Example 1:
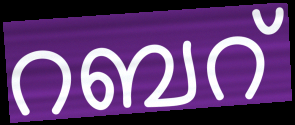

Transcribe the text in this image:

റബറ്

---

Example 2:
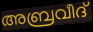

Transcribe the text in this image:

അബ്രവീദ്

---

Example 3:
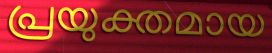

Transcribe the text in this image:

പ്രയുക്തമായ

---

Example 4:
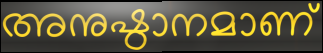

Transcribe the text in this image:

അനുഷ്ഠാനമാണ്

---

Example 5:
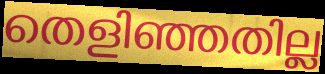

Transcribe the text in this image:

തെളിഞ്ഞതില്ല